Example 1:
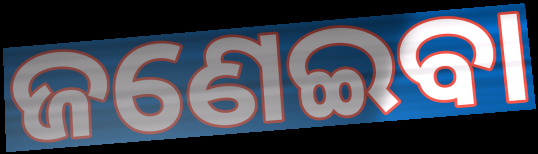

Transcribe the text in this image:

ଜଣେଇବା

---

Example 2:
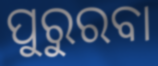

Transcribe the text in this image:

ପୁରୁରବା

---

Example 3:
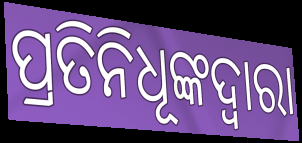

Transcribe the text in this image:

ପ୍ରତିନିଧୂଙ୍କଦ୍ଵାରା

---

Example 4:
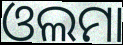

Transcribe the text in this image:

ଓଲମା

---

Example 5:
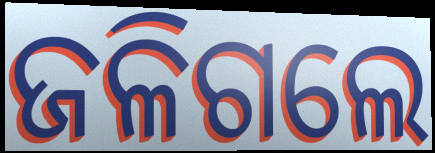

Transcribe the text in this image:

ଜଳିଗଲେ